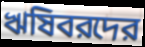
ঋষিবরদের